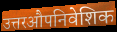
उत्तरऔपनिवेशिक